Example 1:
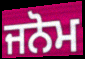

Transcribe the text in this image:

ਜਨੋਮ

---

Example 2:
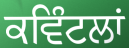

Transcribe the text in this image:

ਕਵਿੰਟਲਾਂ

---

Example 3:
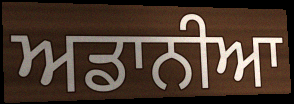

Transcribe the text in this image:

ਅਡਾਨੀਆ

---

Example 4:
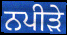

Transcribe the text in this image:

ਨਪੀੜੇ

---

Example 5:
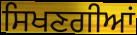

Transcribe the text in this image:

ਸਿਖਣਗੀਆਂ